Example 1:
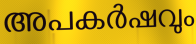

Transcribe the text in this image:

അപകർഷവും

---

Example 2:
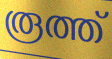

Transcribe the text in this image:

രൂത്ത്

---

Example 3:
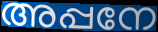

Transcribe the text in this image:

അപ്പനേ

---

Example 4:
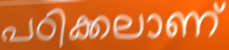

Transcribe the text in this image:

പഠിക്കലാണ്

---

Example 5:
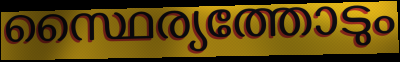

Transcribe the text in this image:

സ്ഥൈര്യത്തോടും